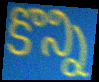
కొన్ని